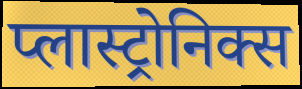
प्लास्ट्रोनिक्स